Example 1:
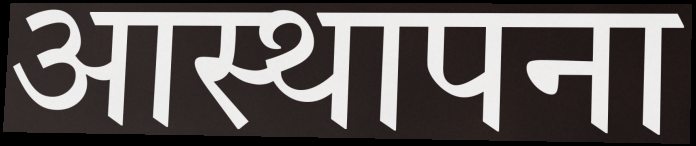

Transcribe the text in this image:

आस्थापना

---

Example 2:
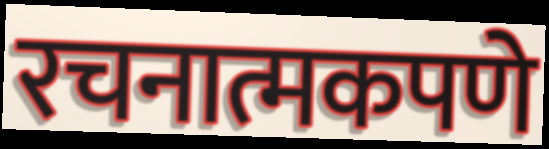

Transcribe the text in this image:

रचनात्मकपणे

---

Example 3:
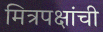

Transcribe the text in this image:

मित्रपक्षांची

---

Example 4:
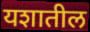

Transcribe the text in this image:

यशातील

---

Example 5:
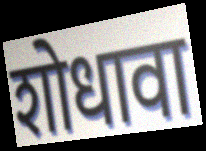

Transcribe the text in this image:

शोधावा